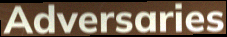
Adversaries